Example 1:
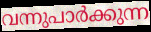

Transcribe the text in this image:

വന്നുപാർക്കുന്ന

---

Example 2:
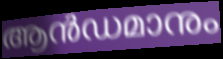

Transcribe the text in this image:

ആൻഡമാനും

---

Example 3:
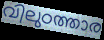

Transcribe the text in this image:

വിലുഠത്താര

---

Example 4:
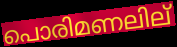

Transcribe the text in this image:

പൊരിമണലില്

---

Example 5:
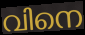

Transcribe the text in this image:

വിനെ